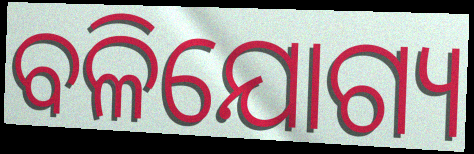
ବଳିଯୋଗ୍ୟ